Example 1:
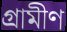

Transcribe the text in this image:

গ্ৰামীণ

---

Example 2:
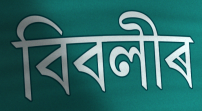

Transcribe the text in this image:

বিবলীৰ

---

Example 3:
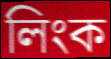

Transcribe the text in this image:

লিংক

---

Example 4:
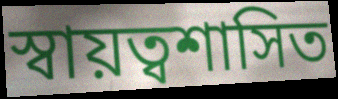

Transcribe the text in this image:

স্বায়ত্বশাসিত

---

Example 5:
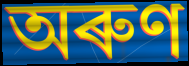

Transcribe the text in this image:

অৰুণ